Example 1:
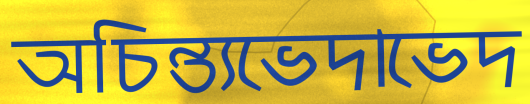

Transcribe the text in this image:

অচিন্ত্যভেদাভেদ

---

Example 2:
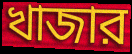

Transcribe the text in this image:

খাজার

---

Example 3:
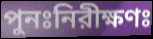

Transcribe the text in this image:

পুনঃনিরীক্ষণঃ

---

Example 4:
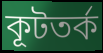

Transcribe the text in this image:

কূটতর্ক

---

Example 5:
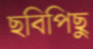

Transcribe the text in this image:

ছবিপিছু